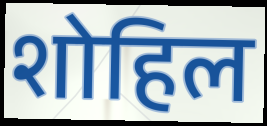
शोहिल